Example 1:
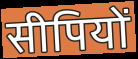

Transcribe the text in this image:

सीपियों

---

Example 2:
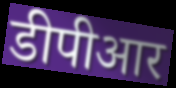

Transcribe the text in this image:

डीपीआर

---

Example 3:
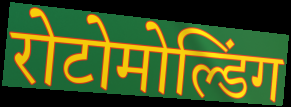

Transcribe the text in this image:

रोटोमोल्डिंग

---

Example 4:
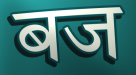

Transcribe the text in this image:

बज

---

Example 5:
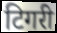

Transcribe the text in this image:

टिगरी